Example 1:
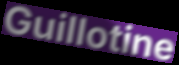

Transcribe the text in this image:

Guillotine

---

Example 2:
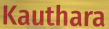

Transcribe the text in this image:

Kauthara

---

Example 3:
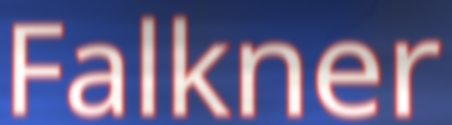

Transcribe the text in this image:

Falkner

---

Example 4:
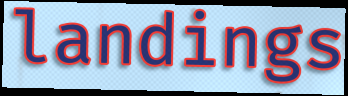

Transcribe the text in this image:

landings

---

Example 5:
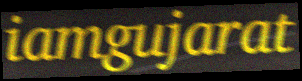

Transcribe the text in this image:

iamgujarat